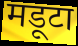
मडूटा